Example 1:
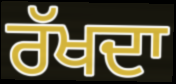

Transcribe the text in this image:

ਰੱਖਦਾ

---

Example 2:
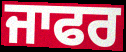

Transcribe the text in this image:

ਜਾਫਰ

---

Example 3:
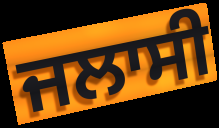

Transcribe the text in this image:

ਜਲਾਸੀ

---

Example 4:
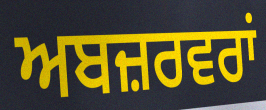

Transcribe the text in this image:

ਅਬਜ਼ਰਵਰਾਂ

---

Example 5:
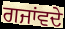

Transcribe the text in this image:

ਗਜਾਂਵਦੇ